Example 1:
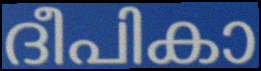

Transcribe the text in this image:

ദീപികാ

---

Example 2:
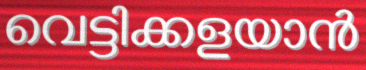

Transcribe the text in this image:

വെട്ടിക്കളയാൻ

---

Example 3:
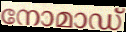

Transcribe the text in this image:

നോമാഡ്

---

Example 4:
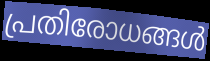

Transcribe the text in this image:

പ്രതിരോധങ്ങൾ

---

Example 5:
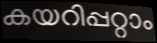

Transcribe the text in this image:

കയറിപ്പറ്റാം